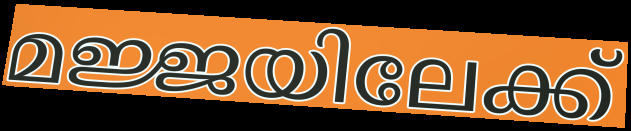
മജ്ജയിലേക്ക്